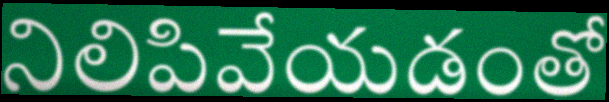
నిలిపివేయడంతో